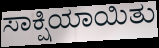
ಸಾಕ್ಷಿಯಾಯಿತು